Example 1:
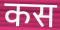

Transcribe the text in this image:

कस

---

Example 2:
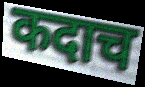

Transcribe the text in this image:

कदाच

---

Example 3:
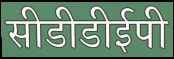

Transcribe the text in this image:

सीडीडीईपी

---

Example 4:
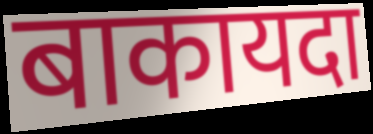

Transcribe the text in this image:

बाकायदा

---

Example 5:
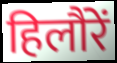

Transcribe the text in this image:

हिलौरें